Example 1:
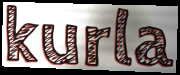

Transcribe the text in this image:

kurla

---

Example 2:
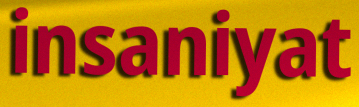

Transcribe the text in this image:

insaniyat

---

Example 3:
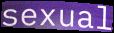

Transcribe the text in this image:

sexual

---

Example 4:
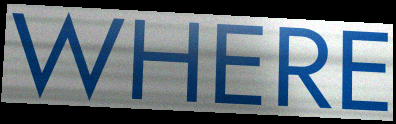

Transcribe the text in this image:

WHERE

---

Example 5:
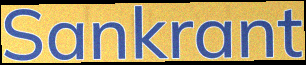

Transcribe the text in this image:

Sankrant